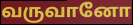
வருவானோ